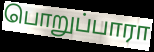
பொறுப்பாரா